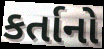
કર્તાનો